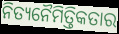
ନିତ୍ୟନୈମିତ୍ତିକତାର